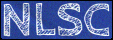
NLSC